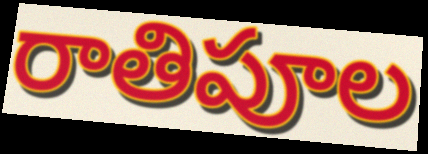
రాతిపూల